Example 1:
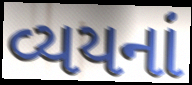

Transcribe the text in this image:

વ્યયનાં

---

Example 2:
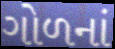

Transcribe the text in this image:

ગોળનાં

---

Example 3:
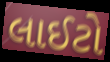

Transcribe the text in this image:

લાઈટો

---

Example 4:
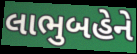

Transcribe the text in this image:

લાભુબહેને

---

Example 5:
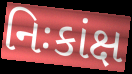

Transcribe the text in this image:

નિઃકાંક્ષ